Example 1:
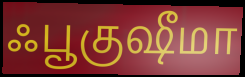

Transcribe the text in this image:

ஃபூகுஷீமா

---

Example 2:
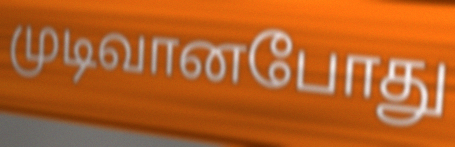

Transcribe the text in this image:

முடிவானபோது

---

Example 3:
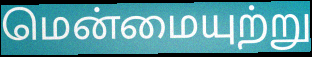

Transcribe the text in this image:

மென்மையுற்று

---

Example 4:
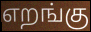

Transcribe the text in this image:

எறங்கு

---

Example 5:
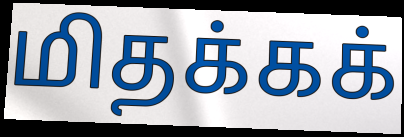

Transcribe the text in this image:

மிதக்கக்